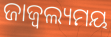
ଜାଜ୍ୱଲ୍ୟମୟ